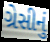
ગ્રેસીનું